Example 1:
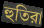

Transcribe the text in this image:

হুতিরা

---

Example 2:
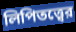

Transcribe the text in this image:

লিপিতত্ত্বের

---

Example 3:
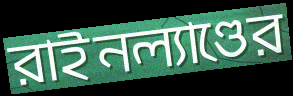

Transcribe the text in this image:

রাইনল্যাণ্ডের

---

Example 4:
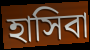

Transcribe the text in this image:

হাসিবা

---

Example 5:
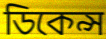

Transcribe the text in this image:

ডিকেন্স